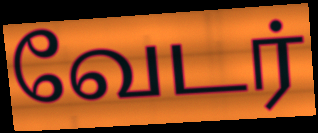
வேடர்